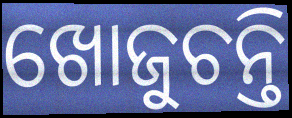
ଖୋଜୁଚନ୍ତି